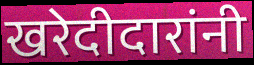
खरेदीदारांनी